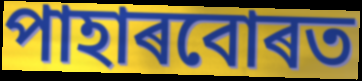
পাহাৰবোৰত